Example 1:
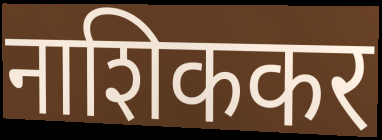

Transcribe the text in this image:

नाशिककर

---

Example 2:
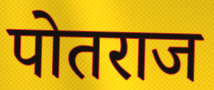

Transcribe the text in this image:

पोतराज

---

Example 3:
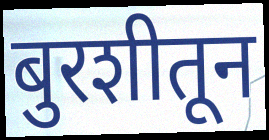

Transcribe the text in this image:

बुरशीतून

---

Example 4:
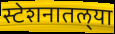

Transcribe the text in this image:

स्टेशनातल्या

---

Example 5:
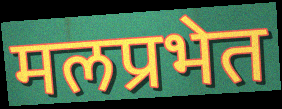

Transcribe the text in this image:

मलप्रभेत